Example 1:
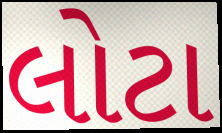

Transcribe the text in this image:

લોટા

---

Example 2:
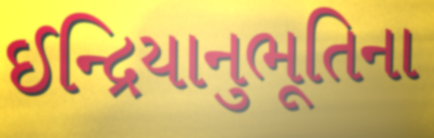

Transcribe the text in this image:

ઈન્દ્રિયાનુભૂતિના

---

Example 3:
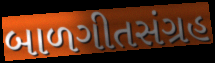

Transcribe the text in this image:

બાળગીતસંગ્રહ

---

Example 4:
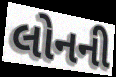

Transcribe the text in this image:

લોનની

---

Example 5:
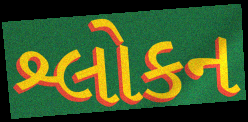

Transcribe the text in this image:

શ્લોકન